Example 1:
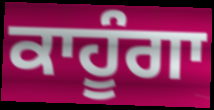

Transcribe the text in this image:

ਕਾਹੂੰਗਾ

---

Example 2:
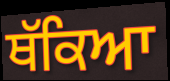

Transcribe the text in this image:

ਥੱਕਿਆ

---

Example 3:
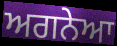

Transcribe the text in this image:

ਅਗਨੇਆ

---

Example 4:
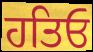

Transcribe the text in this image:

ਹਤਿਓ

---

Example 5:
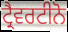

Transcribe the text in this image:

ਟ੍ਰੈਵਰਟੀਨੋ